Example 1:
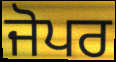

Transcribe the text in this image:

ਜੋਪਰ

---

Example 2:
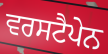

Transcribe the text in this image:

ਵਰਸਟੈਪੇਨ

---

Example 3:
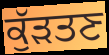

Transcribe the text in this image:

ਕੁੱੜਤਣ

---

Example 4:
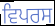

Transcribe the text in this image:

ਵਿਪਰਸ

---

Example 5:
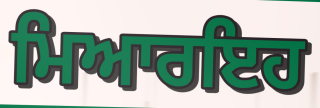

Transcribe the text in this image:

ਮਿਆਰਇਹ